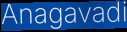
Anagavadi